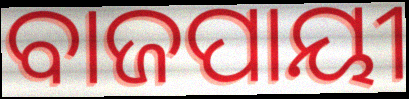
ବାଜପାୟୀ